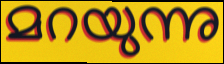
മറയുന്നു